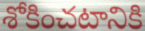
శోకించటానికి